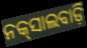
ନକ୍‌ସାଲବାଡ଼ି